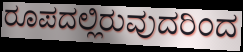
ರೂಪದಲ್ಲಿರುವುದರಿಂದ